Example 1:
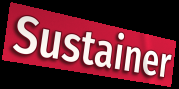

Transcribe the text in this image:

Sustainer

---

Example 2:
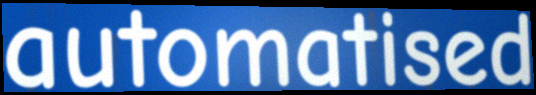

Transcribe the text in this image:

automatised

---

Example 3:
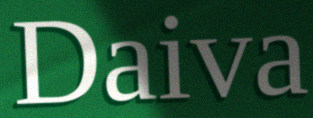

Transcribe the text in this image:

Daiva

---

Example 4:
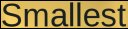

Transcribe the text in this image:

Smallest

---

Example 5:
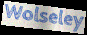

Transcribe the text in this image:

Wolseley